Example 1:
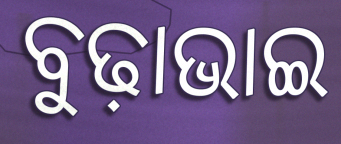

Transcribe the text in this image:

ବୁଢ଼ାଭାଇ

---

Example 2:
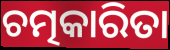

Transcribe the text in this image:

ଚତ୍ମକାରିତା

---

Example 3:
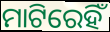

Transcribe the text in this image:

ମାଟିରେହିଁ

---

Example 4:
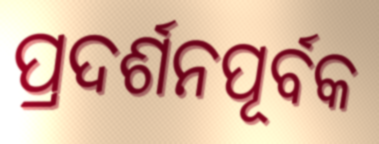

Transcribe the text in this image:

ପ୍ରଦର୍ଶନପୂର୍ବକ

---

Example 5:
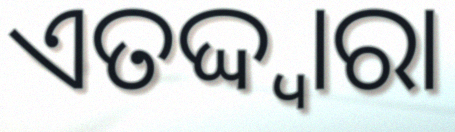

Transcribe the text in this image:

ଏତଦ୍ଦ୍ୱାରା